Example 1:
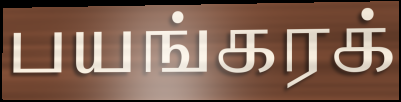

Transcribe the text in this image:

பயங்கரக்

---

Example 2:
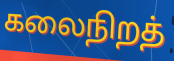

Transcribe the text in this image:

கலைநிறத்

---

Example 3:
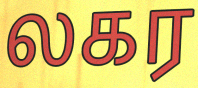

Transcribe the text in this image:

லகர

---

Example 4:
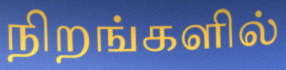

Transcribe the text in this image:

நிறங்களில்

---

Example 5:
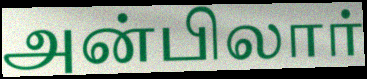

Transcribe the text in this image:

அன்பிலார்